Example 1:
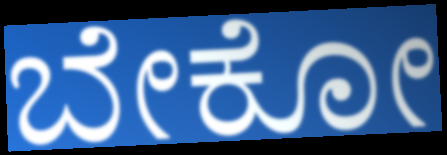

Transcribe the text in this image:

ಬೇಕೋ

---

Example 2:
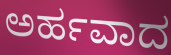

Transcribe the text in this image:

ಅರ್ಹವಾದ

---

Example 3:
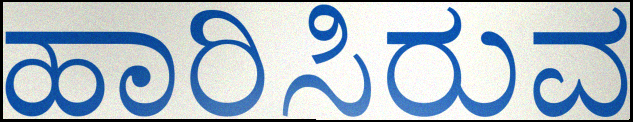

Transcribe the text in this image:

ಹಾರಿಸಿರುವ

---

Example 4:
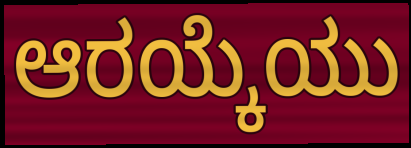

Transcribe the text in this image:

ಆರಯ್ಕೆಯು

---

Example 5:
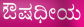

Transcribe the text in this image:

ಔಷಧೀಯ